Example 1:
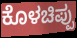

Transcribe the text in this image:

ಕೊಳಚಿಪ್ಪು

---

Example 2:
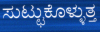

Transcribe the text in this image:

ಸುಟ್ಟುಕೊಳ್ಳುತ್ತ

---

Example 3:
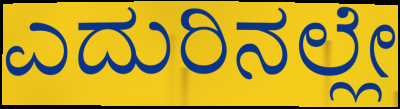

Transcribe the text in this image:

ಎದುರಿನಲ್ಲೇ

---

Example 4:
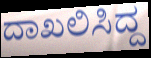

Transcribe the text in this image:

ದಾಖಲಿಸಿದ್ದ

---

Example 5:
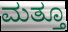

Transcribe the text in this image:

ಮತ್ತೂ